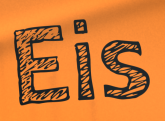
Eis